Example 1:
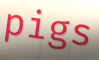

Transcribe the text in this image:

pigs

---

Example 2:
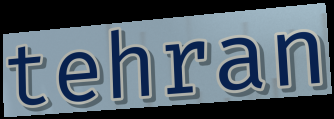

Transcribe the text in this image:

tehran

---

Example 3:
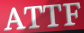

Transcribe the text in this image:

ATTF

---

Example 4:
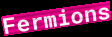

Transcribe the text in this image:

Fermions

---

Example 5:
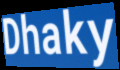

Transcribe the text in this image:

Dhaky